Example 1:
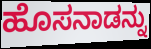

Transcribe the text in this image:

ಹೊಸನಾಡನ್ನು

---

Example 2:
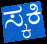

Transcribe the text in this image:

ಸ್ಕಕಿ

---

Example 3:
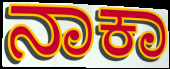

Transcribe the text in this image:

ನಾಕಾ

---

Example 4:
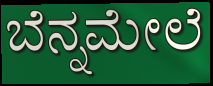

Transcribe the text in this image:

ಬೆನ್ನಮೇಲೆ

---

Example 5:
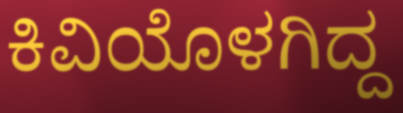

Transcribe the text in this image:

ಕಿವಿಯೊಳಗಿದ್ದ